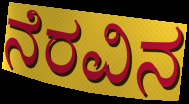
ನೆರವಿನ